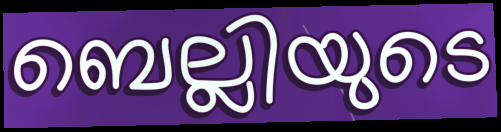
ബെല്ലിയുടെ